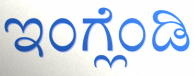
ಇಂಗ್ಲೆಂಡಿ